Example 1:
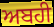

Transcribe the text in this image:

ਅਬਹੀ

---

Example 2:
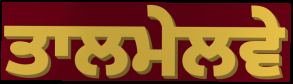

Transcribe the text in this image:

ਤਾਲਮੇਲਵੇ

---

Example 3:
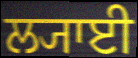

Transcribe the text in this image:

ਲ੍ਯਾਈ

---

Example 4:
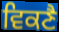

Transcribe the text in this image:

ਵਿਕਣੈ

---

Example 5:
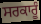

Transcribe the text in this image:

ਸਰਕਾਰੂੰ